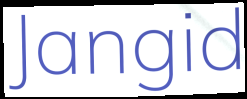
Jangid